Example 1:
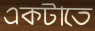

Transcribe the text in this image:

একটাতে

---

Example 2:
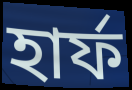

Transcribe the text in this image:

হার্ফ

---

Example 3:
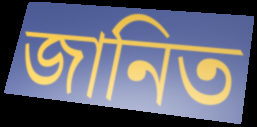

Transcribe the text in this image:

জানিত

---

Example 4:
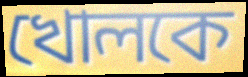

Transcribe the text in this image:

খোলকে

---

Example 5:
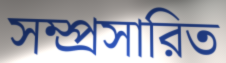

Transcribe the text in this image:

সম্প্রসারিত